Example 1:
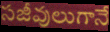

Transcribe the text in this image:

సజీవులుగానే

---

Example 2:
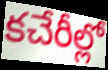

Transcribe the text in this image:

కచేరీల్లో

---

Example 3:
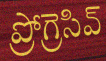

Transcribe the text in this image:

ప్రోగ్రెసివ్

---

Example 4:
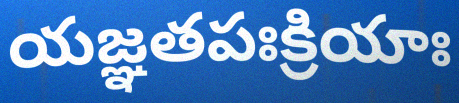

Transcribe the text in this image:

యజ్ఞతపఃక్రియాః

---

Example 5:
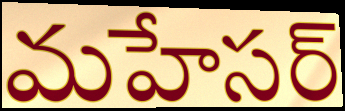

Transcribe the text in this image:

మహేసర్